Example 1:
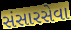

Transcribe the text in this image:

સંસારસેવા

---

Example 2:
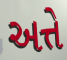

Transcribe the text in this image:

અત્તે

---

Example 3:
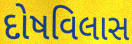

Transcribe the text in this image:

દોષવિલાસ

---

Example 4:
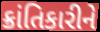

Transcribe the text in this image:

ક્રાંતિકારીને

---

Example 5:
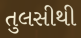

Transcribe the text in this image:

તુલસીથી